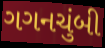
ગગનચુંબી